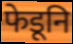
फेडूनि